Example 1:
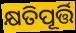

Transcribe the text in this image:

କ୍ଷତିପୂର୍ତ୍ତି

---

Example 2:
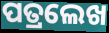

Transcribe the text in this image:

ପତ୍ରଲେଖ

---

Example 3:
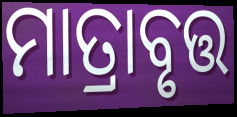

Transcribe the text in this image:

ମାତ୍ରାବୃତ୍ତ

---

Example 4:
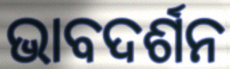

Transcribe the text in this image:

ଭାବଦର୍ଶନ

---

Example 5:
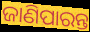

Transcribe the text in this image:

ଜାଣିପାରନ୍ତ